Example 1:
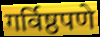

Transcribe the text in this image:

गर्विष्ठपणे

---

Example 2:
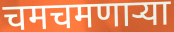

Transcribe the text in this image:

चमचमणार्‍या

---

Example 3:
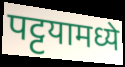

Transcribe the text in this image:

पट्टयामध्ये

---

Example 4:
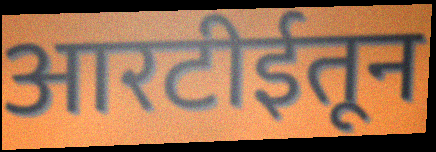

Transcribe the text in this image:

आरटीईतून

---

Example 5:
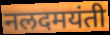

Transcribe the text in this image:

नलदमयंती